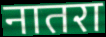
नातरा